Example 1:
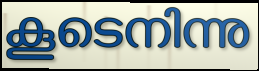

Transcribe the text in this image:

കൂടെനിന്നു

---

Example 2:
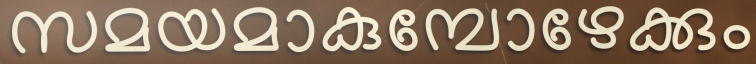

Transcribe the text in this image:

സമയമാകുമ്പോഴേക്കും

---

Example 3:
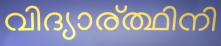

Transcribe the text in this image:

വിദ്യാര്ത്ഥിനി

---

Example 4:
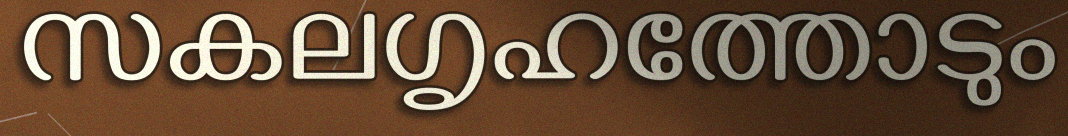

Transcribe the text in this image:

സകലഗൃഹത്തോടും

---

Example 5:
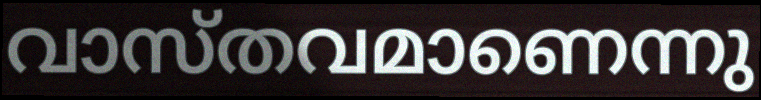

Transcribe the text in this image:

വാസ്തവമാണെന്നു